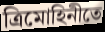
ত্রিমোহিনীতে